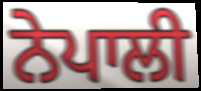
ਨੇਪਾਲੀ